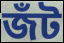
জঁট